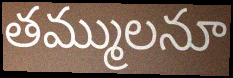
తమ్ములనూ